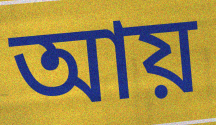
আয়